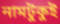
নামটুকুই